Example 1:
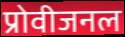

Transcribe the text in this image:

प्रोवीजनल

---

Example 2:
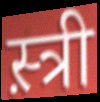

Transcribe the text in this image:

स़्त्री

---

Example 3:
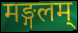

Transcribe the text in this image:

मङ्गलम्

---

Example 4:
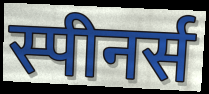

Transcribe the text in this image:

स्पीनर्स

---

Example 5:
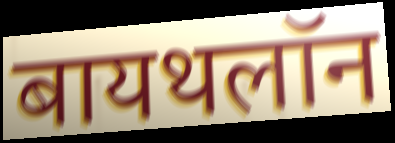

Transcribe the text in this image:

बायथलॉन